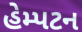
હેમ્પટન